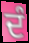
ਦੰ